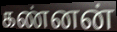
கண்னன்